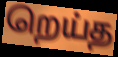
றெய்த